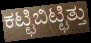
ಕಟ್ಟಿಬಿಟ್ಟಿತ್ತು